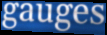
gauges